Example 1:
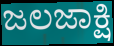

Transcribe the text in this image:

ಜಲಜಾಕ್ಷಿ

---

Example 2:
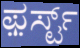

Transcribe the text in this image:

ಫ಼ರ್ಸ್ಟ್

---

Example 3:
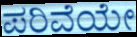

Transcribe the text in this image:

ಪರಿವೆಯೇ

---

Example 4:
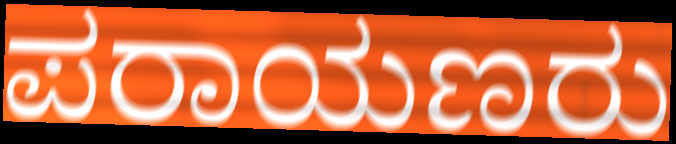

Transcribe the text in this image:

ಪರಾಯಣರು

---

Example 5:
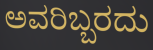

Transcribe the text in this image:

ಅವರಿಬ್ಬರದು